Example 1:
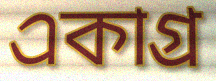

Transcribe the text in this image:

একাগ্র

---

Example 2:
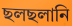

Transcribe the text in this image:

ছলছলানি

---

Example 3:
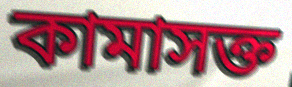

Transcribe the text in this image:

কামাসক্ত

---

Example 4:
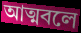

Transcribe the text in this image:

আত্মবলে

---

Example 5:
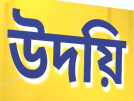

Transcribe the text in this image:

উদয়ি